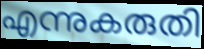
എന്നുകരുതി